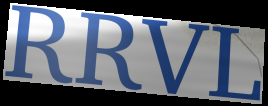
RRVL